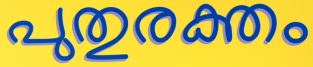
പുതുരക്തം